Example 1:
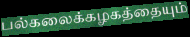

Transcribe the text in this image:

பல்கலைக்கழகத்தையும்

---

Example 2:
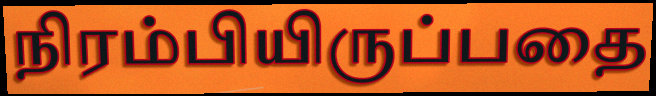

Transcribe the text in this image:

நிரம்பியிருப்பதை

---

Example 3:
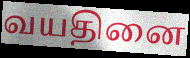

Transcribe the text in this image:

வயதினை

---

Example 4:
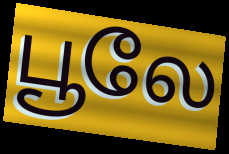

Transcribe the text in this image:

பூலே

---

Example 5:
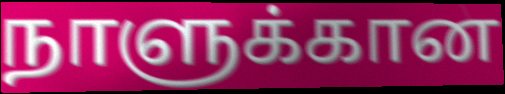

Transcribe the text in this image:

நாளுக்கான